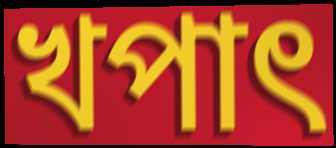
খপাৎ